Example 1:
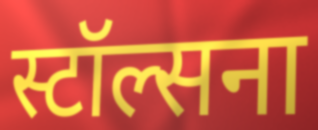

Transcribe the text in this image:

स्टॉल्सना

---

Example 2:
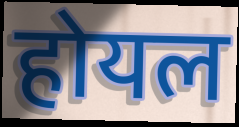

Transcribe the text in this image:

होयल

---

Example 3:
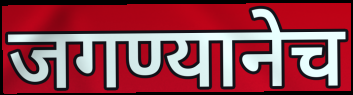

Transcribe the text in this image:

जगण्यानेच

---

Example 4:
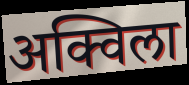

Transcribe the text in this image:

अक्विला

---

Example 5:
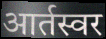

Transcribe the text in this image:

आर्तस्वर